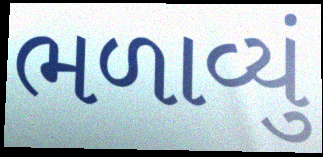
ભળાવ્યું